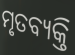
ମୃତବ୍ୟକ୍ତି